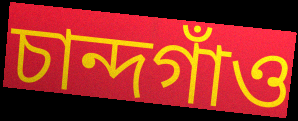
চান্দগাঁও